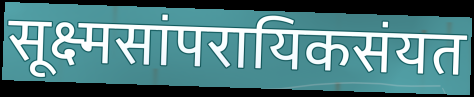
सूक्ष्मसांपरायिकसंयत